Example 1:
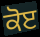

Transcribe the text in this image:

ਕੋੲ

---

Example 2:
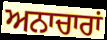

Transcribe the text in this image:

ਅਨਾਚਾਰਾਂ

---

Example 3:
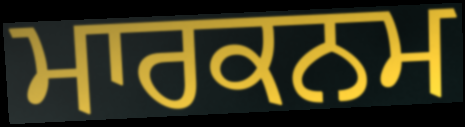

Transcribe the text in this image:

ਮਾਰਕਨਮ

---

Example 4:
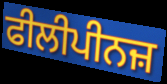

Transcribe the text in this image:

ਫੀਲੀਪੀਨਜ਼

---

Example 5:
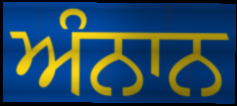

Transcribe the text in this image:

ਅੰਨਾਨ